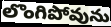
లొంగిపోవును